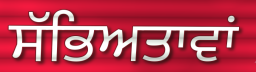
ਸੱਭਿਅਤਾਵਾਂ